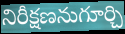
నిరీక్షణనుగూర్చి